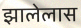
झालेलास